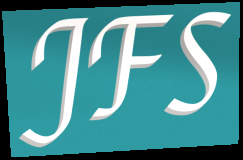
JFS